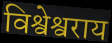
विश्वेश्वराय